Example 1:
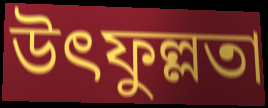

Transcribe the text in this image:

উৎফুল্লতা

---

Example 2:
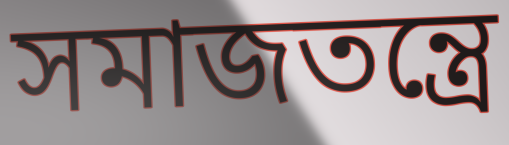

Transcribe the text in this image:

সমাজতন্ত্রে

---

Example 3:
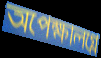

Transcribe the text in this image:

অপেক্ষালগ্নে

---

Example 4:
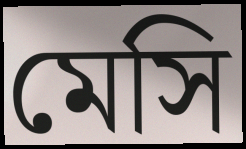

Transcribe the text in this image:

মেসি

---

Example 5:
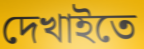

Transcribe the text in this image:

দেখাইতে